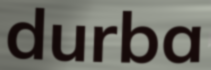
durba